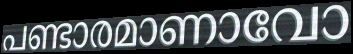
പണ്ടാരമാണാവോ